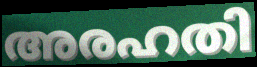
അരഹതി